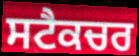
ਸਟੈਕਚਰ